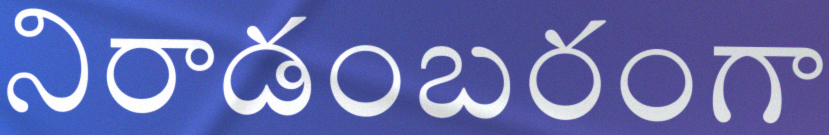
నిరాడంబరంగా